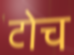
टोच